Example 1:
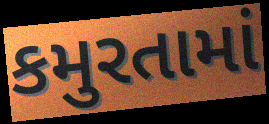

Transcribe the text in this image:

કમુરતામાં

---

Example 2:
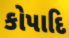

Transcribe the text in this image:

કોપાદિ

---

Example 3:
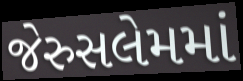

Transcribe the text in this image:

જેરુસલેમમાં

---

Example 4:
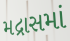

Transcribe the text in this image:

મદ્રાસમાં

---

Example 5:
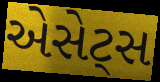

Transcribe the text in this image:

એસેટ્સ